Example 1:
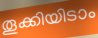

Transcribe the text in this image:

തൂക്കിയിടാം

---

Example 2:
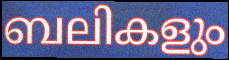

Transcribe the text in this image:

ബലികളും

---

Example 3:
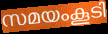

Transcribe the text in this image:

സമയംകൂടി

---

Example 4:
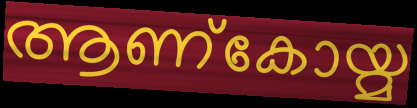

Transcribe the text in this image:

ആണ്കോയ്മ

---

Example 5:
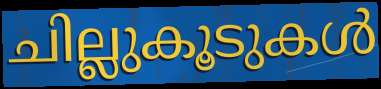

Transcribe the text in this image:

ചില്ലുകൂടുകൾ